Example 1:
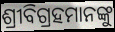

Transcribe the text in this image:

ଶ୍ରୀବିଗ୍ରହମାନଙ୍କୁ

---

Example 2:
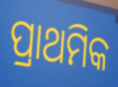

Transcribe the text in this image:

ପ୍ରାଥମିକ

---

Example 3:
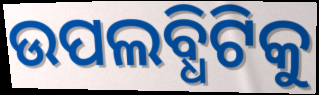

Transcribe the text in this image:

ଉପଲବ୍ଧିଟିକୁ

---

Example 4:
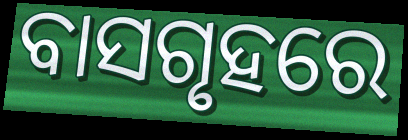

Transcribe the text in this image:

ବାସଗୃହରେ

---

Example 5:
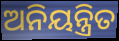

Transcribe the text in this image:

ଅନିୟନ୍ତ୍ରିତ